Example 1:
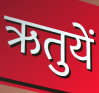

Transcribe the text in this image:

ऋतुयें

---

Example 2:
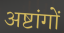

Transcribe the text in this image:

अष्टांगों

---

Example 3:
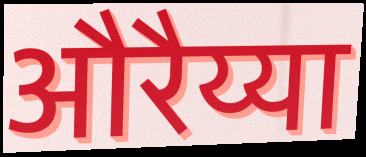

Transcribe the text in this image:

औरैय्या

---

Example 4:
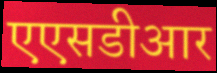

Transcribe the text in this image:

एएसडीआर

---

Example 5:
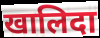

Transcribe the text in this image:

खालिदा